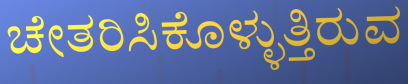
ಚೇತರಿಸಿಕೊಳ್ಳುತ್ತಿರುವ